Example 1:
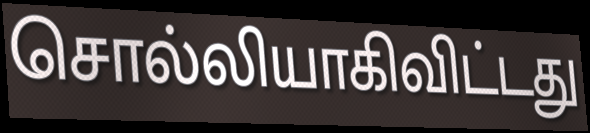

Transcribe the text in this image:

சொல்லியாகிவிட்டது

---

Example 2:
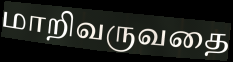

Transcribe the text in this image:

மாறிவருவதை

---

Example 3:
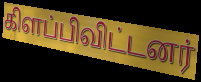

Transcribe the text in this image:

கிளப்பிவிட்டனர்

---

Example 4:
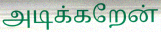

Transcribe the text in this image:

அடிக்கறேன்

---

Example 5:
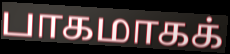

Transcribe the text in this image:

பாகமாகக்